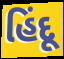
હિંદૂ